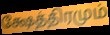
க்ஷேத்திரமும்